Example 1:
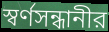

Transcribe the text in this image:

স্বর্ণসন্ধানীর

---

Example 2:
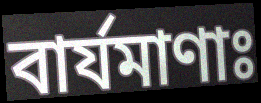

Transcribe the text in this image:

বার্যমাণাঃ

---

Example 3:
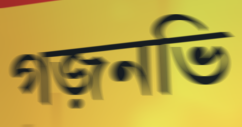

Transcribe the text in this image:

গজ়নভি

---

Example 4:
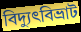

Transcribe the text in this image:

বিদ্যুৎবিভ্রাট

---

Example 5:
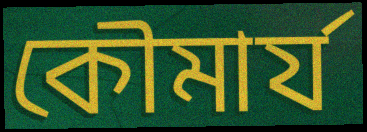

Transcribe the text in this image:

কৌমার্য